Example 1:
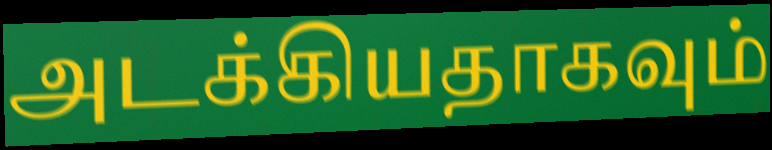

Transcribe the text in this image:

அடக்கியதாகவும்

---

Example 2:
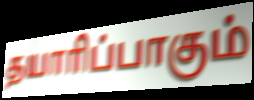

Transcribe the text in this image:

தயாரிப்பாகும்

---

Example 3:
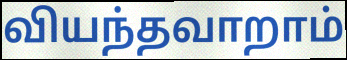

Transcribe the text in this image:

வியந்தவாறாம்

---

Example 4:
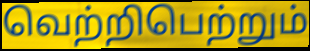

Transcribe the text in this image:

வெற்றிபெற்றும்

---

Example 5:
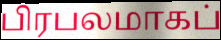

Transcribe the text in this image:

பிரபலமாகப்